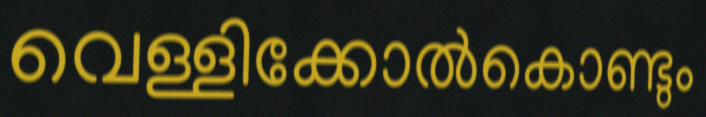
വെള്ളിക്കോൽകൊണ്ടും